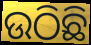
ଉଠିଛି